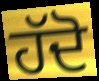
ਹੱਦੋ